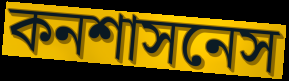
কনশাসনেস